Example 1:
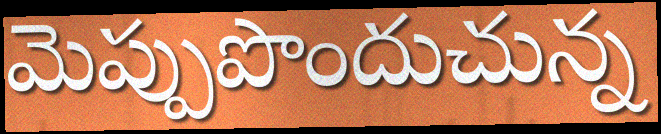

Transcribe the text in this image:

మెప్పుపొందుచున్న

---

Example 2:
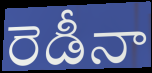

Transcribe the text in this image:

రెడీనా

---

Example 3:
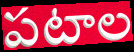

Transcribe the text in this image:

పటాల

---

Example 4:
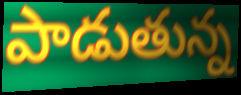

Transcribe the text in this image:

పాడుతున్న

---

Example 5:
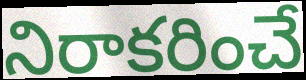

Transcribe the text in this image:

నిరాకరించే